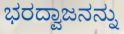
ಭರದ್ವಾಜನನ್ನು